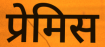
प्रेमिस